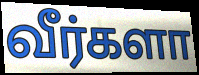
வீர்களா